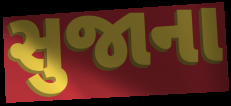
સુજાના